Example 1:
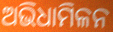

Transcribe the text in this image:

ଅଭିଧାମିଳନ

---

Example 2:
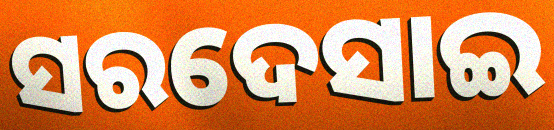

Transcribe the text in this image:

ସରଦେସାଇ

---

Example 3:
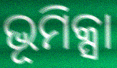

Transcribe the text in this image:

ଭୂମିକ୍ସା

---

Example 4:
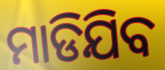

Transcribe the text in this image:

ମାଡିଯିବ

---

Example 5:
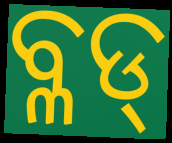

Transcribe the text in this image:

ବ୍ଳଡ୍